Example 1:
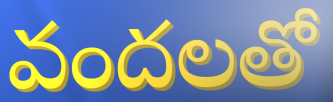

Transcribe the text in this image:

వందలతో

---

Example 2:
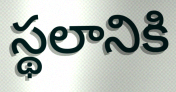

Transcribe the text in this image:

స్థలానికి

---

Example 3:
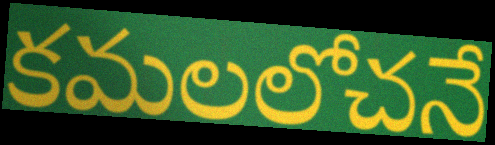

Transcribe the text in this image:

కమలలోచనే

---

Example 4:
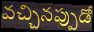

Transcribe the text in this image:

వచ్చినప్పుడో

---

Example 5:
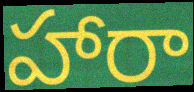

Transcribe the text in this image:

హారా